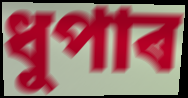
ধুপাৰ